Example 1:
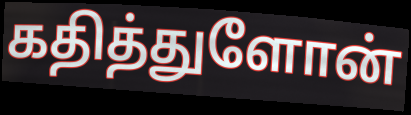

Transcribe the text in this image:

கதித்துளோன்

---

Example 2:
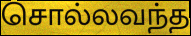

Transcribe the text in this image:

சொல்லவந்த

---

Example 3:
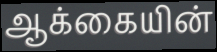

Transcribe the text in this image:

ஆக்கையின்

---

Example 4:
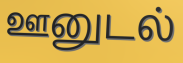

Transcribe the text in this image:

ஊனுடல்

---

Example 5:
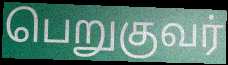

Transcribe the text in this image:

பெறுகுவர்